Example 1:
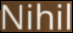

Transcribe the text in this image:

Nihil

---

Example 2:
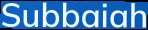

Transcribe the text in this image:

Subbaiah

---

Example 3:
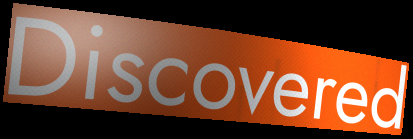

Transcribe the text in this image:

Discovered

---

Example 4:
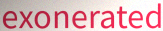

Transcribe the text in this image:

exonerated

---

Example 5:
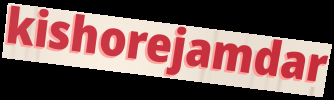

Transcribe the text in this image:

kishorejamdar